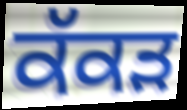
ਕੱਕਡ਼